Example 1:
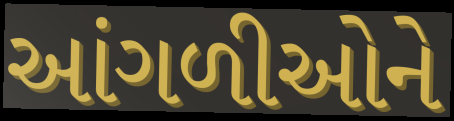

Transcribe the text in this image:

આંગળીઓને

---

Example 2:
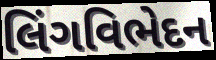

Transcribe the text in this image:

લિંગવિભેદન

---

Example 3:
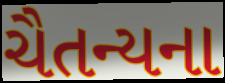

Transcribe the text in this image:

ચૈતન્યના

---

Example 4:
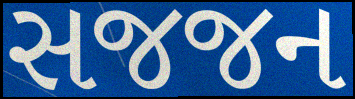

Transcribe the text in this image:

સજજન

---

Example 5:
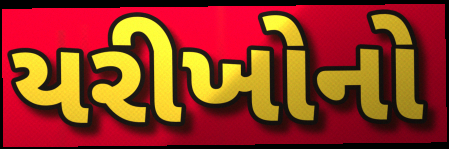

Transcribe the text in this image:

યરીખોનો